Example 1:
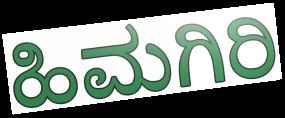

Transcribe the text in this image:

ಹಿಮಗಿರಿ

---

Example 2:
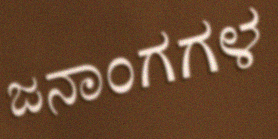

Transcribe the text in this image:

ಜನಾಂಗಗಳ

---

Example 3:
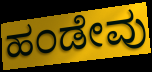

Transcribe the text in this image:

ಹಂಡೇವು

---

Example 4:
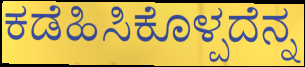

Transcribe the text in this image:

ಕಡೆಹಿಸಿಕೊಳ್ಪದೆನ್ನ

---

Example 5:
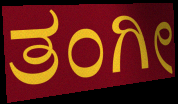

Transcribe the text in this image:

ತಂಗೀ